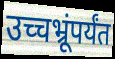
उच्चभ्रूंपर्यंत